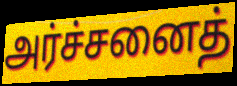
அர்ச்சனைத்